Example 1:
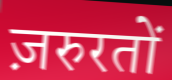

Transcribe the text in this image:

ज़रुरतों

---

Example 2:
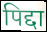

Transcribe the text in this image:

पिद्दा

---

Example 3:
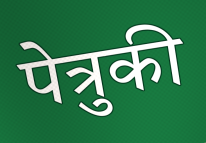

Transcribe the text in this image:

पेत्रुकी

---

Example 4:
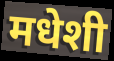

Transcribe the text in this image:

मधेशी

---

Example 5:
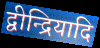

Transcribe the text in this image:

द्वीन्द्रियादि